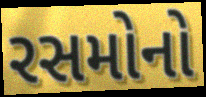
રસમોનો